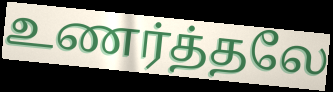
உணர்த்தலே